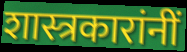
शास्त्रकारांनीं